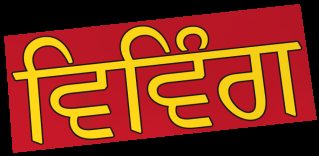
ਵਿਵਿੰਗ